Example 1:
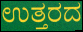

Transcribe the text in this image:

ಉತ್ತರದ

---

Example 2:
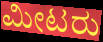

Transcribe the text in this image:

ಮೀಟರು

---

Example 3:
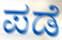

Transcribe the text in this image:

ಪಡೆ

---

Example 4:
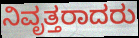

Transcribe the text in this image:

ನಿವೃತ್ತರಾದರು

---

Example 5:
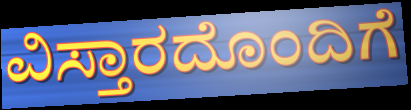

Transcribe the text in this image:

ವಿಸ್ತಾರದೊಂದಿಗೆ